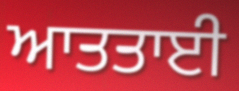
ਆਤਤਾਈ